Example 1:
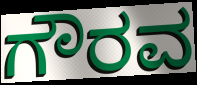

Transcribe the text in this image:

ಗೌರವ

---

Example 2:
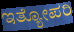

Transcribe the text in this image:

ಇತ್ಯೋಪರಿ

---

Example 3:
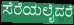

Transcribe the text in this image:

ಸೆರೆಯಲೈದರೆ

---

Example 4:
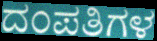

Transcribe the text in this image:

ದಂಪತಿಗಳ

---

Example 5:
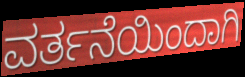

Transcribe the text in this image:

ವರ್ತನೆಯಿಂದಾಗಿ